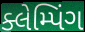
ક્લેમ્પિંગ